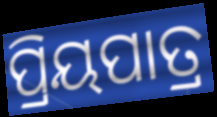
ପ୍ରିୟପାତ୍ର